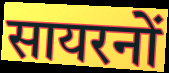
सायरनों